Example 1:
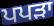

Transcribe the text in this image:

ਪਪੜਾ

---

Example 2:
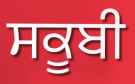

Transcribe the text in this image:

ਸਕੂਬੀ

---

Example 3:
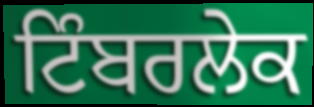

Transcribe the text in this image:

ਟਿੰਬਰਲੇਕ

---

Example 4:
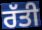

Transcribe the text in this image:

ਰੱਤੀ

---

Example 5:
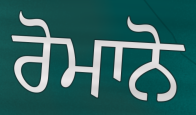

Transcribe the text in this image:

ਰੋਮਾਨੋ